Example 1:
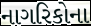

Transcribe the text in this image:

નાગરિકોના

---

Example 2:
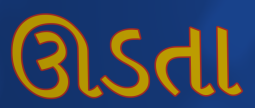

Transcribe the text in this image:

ઊડતા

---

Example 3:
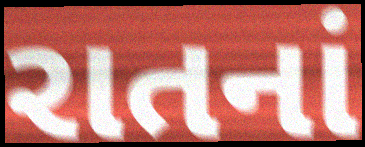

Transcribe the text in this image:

રાતનાં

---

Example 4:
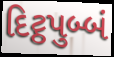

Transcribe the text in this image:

દિટ્ઠપુબ્બં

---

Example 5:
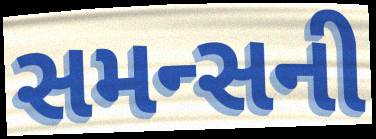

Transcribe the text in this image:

સમન્સની